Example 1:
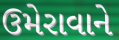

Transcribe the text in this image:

ઉમેરાવાને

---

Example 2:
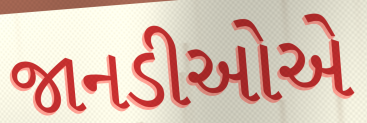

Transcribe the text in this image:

જાનડીઓએ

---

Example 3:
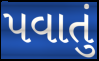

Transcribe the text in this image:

પવાતું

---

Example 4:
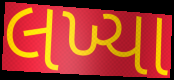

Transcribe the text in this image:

લખ્યા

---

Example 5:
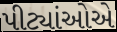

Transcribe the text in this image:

પીટ્યાંઓએ